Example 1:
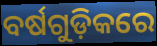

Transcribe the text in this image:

ବର୍ଷଗୁଡ଼ିକରେ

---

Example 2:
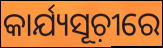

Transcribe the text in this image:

କାର୍ଯ୍ୟସୂଚ଼ୀରେ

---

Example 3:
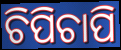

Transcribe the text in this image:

ଚିପିଚାପି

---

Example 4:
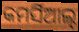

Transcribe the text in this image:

କମର୍ସିଆଲ୍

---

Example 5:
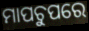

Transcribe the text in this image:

ମାପଚୁପରେ